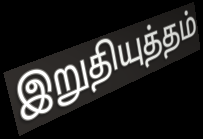
இறுதியுத்தம்